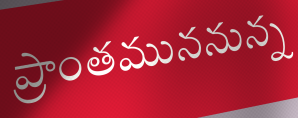
ప్రాంతముననున్న